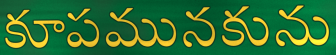
కూపమునకును